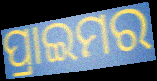
ପ୍ରାଇମର